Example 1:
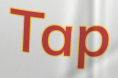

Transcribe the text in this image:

Tap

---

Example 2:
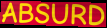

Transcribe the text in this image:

ABSURD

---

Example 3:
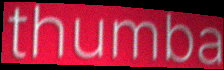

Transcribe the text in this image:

thumba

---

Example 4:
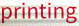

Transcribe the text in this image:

printing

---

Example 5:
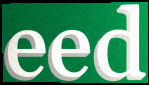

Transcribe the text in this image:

eed